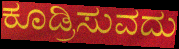
ಕೂಡ್ರಿಸುವದು